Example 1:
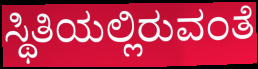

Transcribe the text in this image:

ಸ್ಥಿತಿಯಲ್ಲಿರುವಂತೆ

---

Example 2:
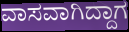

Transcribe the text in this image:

ವಾಸವಾಗಿದ್ದಾಗ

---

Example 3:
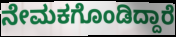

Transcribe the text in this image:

ನೇಮಕಗೊಂಡಿದ್ದಾರೆ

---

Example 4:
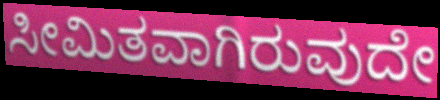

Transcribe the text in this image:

ಸೀಮಿತವಾಗಿರುವುದೇ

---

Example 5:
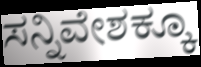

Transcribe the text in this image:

ಸನ್ನಿವೇಶಕ್ಕೂ